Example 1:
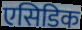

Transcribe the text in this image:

एसिडिक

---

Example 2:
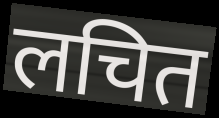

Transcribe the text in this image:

लचित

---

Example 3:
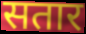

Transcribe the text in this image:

सतार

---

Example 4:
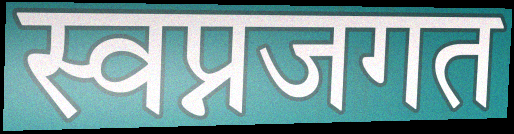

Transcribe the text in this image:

स्वप्नजगत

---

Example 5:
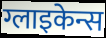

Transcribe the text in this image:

ग्लाइकेन्स